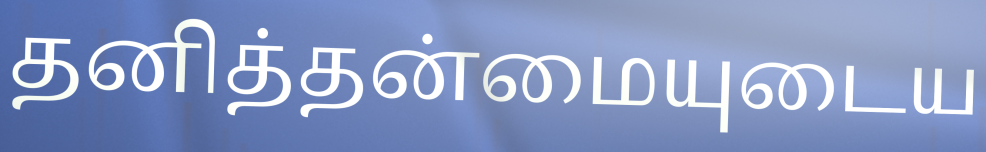
தனித்தன்மையுடைய